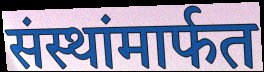
संस्थांमार्फत